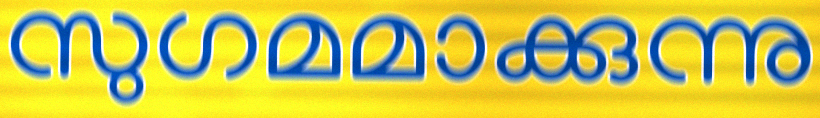
സുഗമമാക്കുന്നു